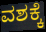
ವಶಕ್ಕೆ